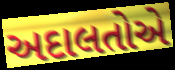
અદાલતોએ